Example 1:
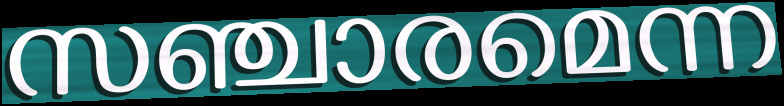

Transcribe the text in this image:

സഞ്ചാരമെന്ന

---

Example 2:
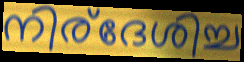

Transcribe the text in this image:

നിര്ദേശിച്ച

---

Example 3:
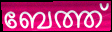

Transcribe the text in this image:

ബേത്ത്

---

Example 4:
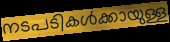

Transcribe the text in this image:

നടപടികൾക്കായുള്ള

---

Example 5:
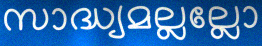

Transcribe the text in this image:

സാദ്ധ്യമല്ലല്ലോ